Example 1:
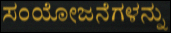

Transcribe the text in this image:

ಸಂಯೋಜನೆಗಳನ್ನು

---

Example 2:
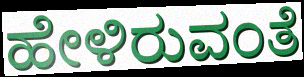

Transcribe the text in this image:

ಹೇಳಿರುವಂತೆ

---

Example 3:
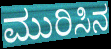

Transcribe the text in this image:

ಮುರಿಸಿನ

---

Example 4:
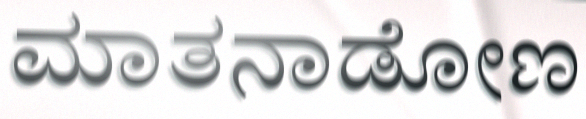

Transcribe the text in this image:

ಮಾತನಾಡೋಣ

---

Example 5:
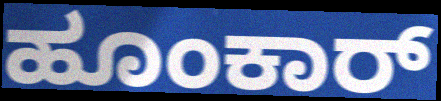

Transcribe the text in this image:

ಹೂಂಕಾರ್